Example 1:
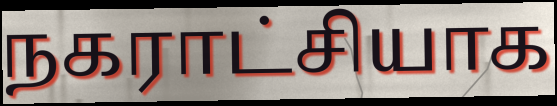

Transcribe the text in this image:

நகராட்சியாக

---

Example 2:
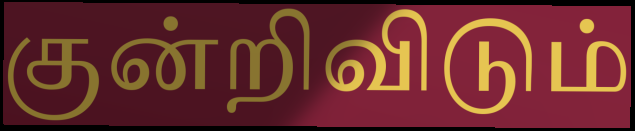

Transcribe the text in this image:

குன்றிவிடும்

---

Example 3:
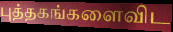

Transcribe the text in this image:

புத்தகங்களைவிட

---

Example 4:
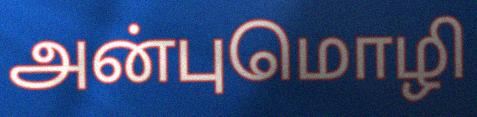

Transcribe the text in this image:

அன்புமொழி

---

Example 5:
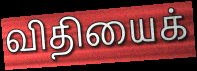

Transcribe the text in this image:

விதியைக்